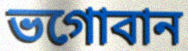
ভগোবান